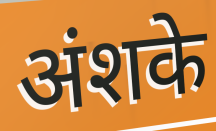
अंशके